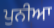
ਪੁਨੀਆ